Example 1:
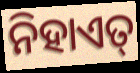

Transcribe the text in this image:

ନିହାଏତ୍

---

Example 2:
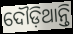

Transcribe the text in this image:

ଦୌଡ଼ିଥାନ୍ତି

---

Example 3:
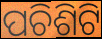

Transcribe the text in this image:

ପଚିଶିଟି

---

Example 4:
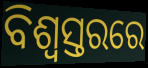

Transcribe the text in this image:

ବିଶ୍ୱସ୍ତରରେ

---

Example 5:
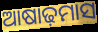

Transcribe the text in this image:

ଆଷାଢ଼ମାସ